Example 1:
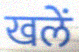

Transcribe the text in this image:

खलें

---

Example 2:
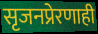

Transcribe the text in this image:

सृजनप्रेरणाही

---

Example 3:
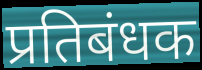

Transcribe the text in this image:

प्रतिबंधक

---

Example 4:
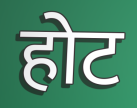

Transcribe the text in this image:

होट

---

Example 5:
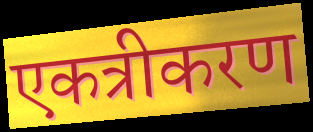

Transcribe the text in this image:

एकत्रीकरण